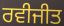
ਰਵੀਜੀਤ